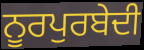
ਨੂਰਪੁਰਬੇਦੀ